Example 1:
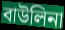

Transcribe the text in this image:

বাউলিনা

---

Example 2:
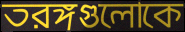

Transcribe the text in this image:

তরঙ্গগুলোকে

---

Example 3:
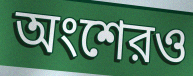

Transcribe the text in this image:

অংশেরও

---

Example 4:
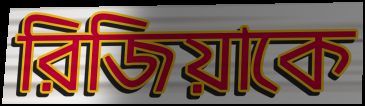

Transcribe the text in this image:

রিজিয়াকে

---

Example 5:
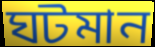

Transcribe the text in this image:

ঘটমান